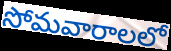
సోమవారాలలో